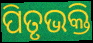
ପିତୃଭକ୍ତି